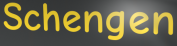
Schengen